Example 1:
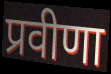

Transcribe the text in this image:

प्रवीणा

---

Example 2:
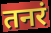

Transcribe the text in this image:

तनरं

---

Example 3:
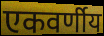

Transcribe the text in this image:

एकवर्णीय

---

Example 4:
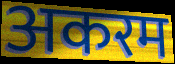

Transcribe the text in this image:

अकरम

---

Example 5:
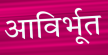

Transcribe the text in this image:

आविर्भूत